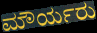
ಮೌರ್ಯರು